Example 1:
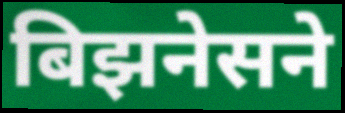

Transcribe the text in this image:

बिझनेसने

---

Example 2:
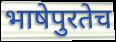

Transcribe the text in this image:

भाषेपुरतेच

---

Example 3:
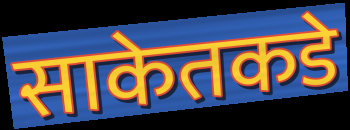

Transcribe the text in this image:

साकेतकडे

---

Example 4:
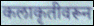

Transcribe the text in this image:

कलाकृतीवरून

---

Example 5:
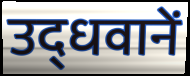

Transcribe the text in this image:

उद्धवानें